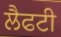
ਲੈਫਟੀ